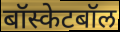
बॉस्केटबॉल